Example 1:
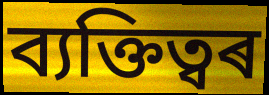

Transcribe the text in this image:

ব্যক্তিত্বৰ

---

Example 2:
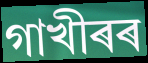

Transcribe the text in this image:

গাখীৰৰ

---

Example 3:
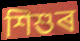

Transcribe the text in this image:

শিশুৰ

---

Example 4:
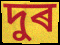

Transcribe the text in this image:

দুৰ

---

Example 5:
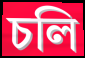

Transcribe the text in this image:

চলি